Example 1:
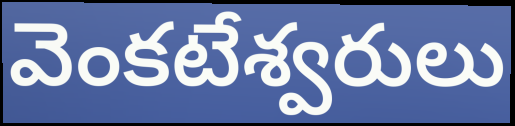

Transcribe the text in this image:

వెంకటేశ్వరులు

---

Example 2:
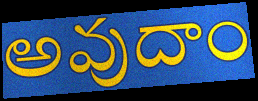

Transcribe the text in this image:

అవుదాం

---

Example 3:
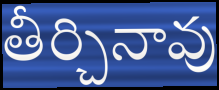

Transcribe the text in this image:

తీర్చినావు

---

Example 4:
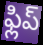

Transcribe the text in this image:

ఫ్లిప్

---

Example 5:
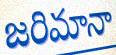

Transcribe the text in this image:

జరిమానా